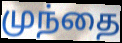
முந்தை